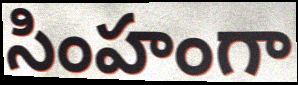
సింహంగా